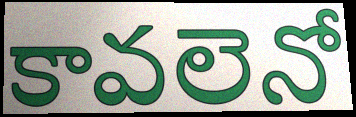
కావలెనో